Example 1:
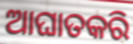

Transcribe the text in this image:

ଆଘାତକରି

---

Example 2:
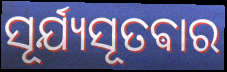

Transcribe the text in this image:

ସୂର୍ଯ୍ଯସୂତଵାର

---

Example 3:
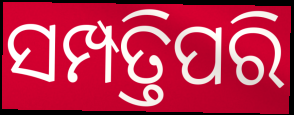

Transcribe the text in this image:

ସମ୍ପତ୍ତିପରି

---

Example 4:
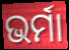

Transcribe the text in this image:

ଭର୍ମା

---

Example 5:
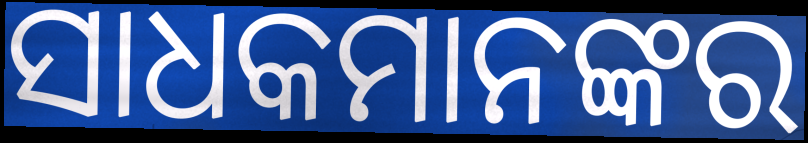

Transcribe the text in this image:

ସାଧକମାନଙ୍କର